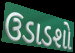
ઉડાડશો